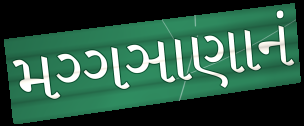
મગ્ગઞાણાનં